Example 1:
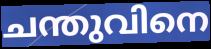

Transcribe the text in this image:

ചന്തുവിനെ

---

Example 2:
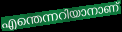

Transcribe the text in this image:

എന്തെന്നറിയാനാണ്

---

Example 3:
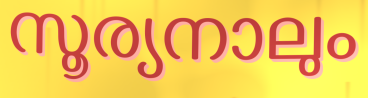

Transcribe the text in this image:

സൂര്യനാലും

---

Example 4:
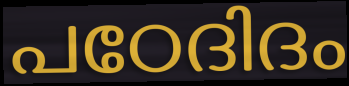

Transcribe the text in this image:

പഠേദിദം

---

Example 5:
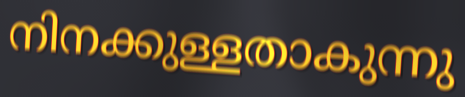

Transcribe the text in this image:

നിനക്കുള്ളതാകുന്നു